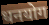
धनयोग